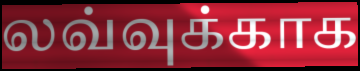
லவ்வுக்காக